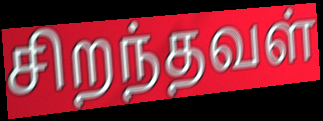
சிறந்தவள்